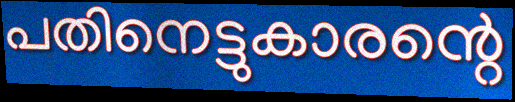
പതിനെട്ടുകാരന്റെ